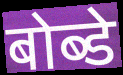
बोब्डे